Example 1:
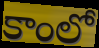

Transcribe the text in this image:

కాంలో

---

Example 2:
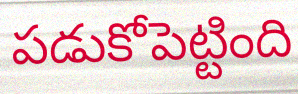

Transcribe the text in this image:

పడుకోపెట్టింది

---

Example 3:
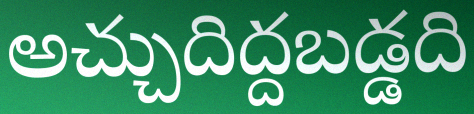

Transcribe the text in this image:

అచ్చుదిద్దబడ్డది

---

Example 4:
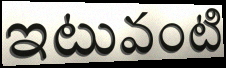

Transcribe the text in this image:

ఇటువంటి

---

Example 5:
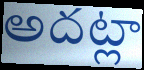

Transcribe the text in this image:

అదట్లా